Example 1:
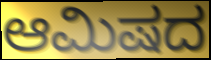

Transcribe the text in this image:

ಆಮಿಷದ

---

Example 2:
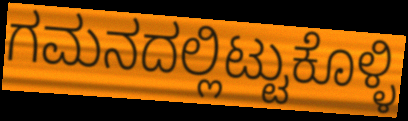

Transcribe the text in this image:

ಗಮನದಲ್ಲಿಟ್ಟುಕೊಳ್ಳಿ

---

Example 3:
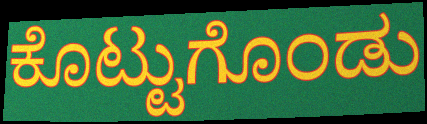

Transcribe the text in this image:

ಕೊಟ್ಟುಗೊಂಡು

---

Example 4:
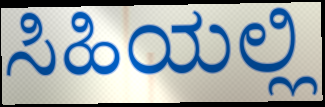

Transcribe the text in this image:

ಸಿಹಿಯಲ್ಲಿ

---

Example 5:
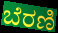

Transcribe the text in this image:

ಬೆರಣಿ